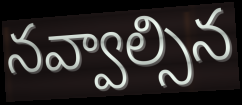
నవ్వాల్సిన